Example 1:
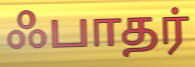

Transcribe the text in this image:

ஃபாதர்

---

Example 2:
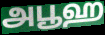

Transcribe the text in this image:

அபூஹ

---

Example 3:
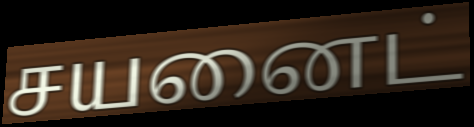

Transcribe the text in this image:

சயனைட்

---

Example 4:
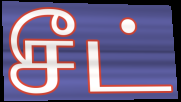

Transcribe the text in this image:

சீட்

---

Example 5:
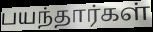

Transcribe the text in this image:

பயந்தார்கள்